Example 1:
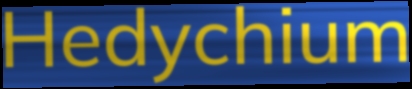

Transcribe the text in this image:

Hedychium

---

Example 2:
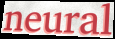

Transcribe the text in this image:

neural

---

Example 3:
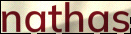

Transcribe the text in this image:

nathas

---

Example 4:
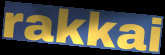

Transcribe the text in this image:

rakkai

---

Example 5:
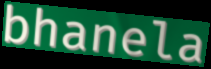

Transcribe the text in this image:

bhanela